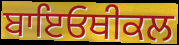
ਬਾਇਓਥੀਕਲ